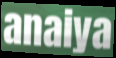
anaiya